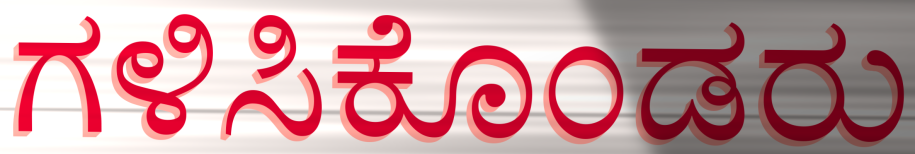
ಗಳಿಸಿಕೊಂಡರು